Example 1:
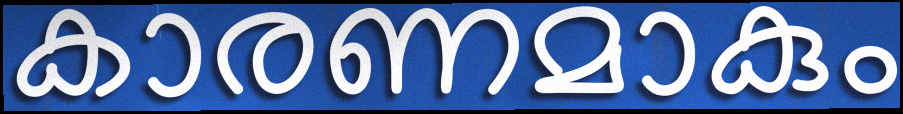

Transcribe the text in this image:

കാരണമാകും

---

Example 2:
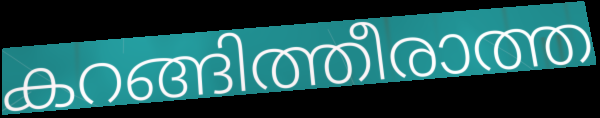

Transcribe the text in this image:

കറങ്ങിത്തീരാത്ത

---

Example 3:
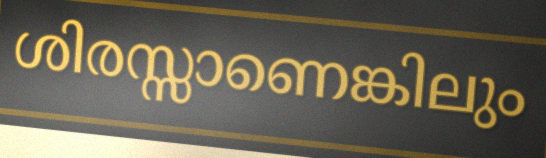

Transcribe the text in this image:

ശിരസ്സാണെങ്കിലും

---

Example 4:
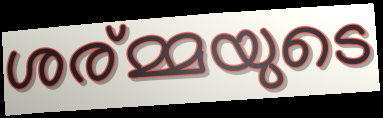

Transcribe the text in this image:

ശര്മ്മയുടെ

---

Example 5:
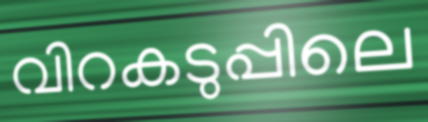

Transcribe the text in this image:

വിറകടുപ്പിലെ